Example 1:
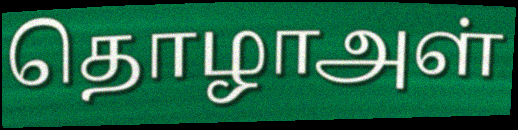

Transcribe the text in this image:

தொழாஅள்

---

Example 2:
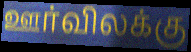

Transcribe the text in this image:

ஊர்விலக்கு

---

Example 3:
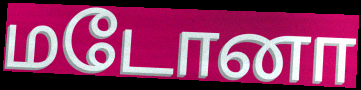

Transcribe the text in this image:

மடோனா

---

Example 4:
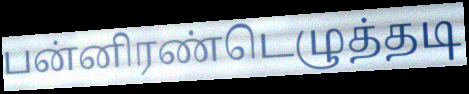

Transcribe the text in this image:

பன்னிரண்டெழுத்தடி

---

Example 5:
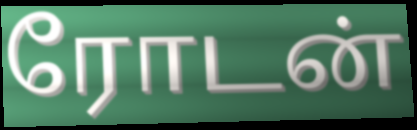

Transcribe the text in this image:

ரோடன்